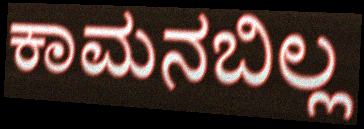
ಕಾಮನಬಿಲ್ಲ